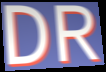
DR